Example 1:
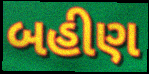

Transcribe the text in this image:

બહીણ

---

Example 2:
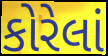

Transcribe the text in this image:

કોરેલાં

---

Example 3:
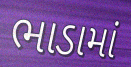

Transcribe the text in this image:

ભાડામાં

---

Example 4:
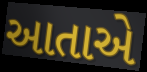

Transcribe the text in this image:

આતાએ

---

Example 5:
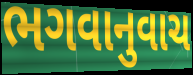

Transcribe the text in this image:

ભગવાનુવાચ